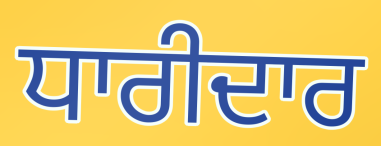
ਧਾਰੀਦਾਰ